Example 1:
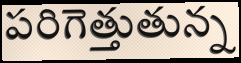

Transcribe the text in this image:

పరిగెత్తుతున్న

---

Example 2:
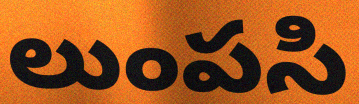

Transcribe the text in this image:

లుంపసి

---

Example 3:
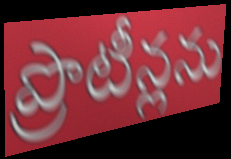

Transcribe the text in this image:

ప్రొటీన్లను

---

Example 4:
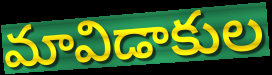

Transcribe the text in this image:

మావిడాకుల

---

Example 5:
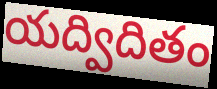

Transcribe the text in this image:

యద్విదితం